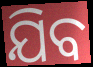
ଯିବ